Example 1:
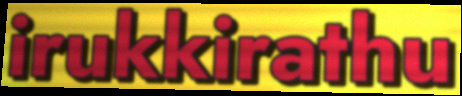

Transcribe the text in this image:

irukkirathu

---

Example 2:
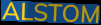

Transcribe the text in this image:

ALSTOM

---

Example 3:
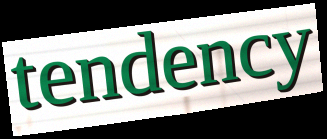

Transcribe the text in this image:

tendency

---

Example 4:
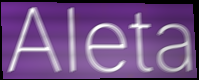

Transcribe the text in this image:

Aleta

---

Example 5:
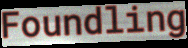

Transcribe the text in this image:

Foundling